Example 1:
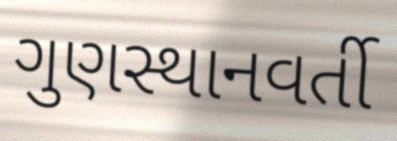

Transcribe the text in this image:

ગુણસ્થાનવર્તી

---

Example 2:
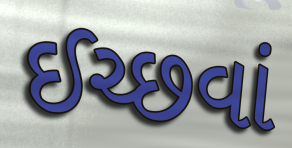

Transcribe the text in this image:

ઈચ્છવાં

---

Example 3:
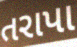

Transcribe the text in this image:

તરાપા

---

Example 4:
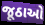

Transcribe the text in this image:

જૂઠાઓ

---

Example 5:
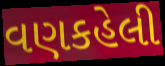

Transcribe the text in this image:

વણકહેલી